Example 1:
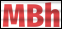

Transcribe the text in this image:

MBh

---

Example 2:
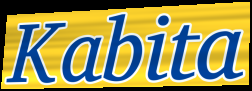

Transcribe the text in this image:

Kabita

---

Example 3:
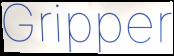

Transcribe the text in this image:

Gripper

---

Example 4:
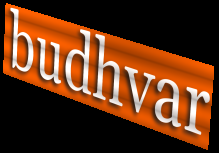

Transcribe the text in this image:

budhvar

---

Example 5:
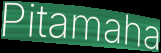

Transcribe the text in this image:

Pitamaha